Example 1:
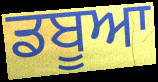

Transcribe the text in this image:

ਡਬੂਆ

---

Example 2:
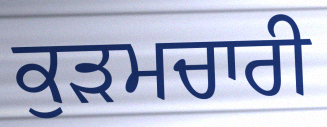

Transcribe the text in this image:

ਕੁੜਮਚਾਰੀ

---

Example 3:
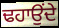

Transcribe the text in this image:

ਢਹਾਉਂਦੇ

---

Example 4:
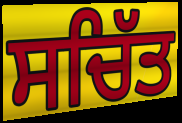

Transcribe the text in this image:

ਸਚਿੱਤ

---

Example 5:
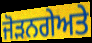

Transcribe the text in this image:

ਜੋੜਨਗੇਅਤੇ